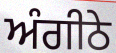
ਅੰਗੀਠੇ